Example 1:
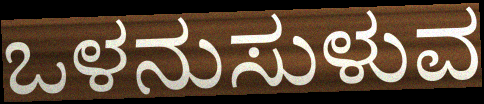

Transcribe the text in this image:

ಒಳನುಸುಳುವ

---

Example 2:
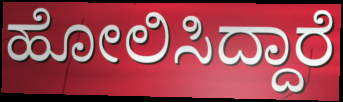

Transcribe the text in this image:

ಹೋಲಿಸಿದ್ದಾರೆ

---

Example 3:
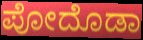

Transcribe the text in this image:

ಪೋದೊಡಾ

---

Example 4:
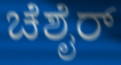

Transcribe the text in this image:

ಚೆಶೈರ್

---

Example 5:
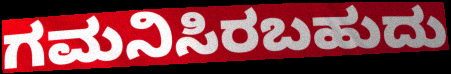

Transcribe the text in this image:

ಗಮನಿಸಿರಬಹುದು